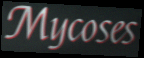
Mycoses